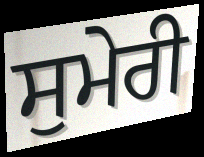
ਸੁਮੇਰੀ